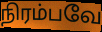
நிரம்பவே